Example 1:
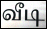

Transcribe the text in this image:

வீடி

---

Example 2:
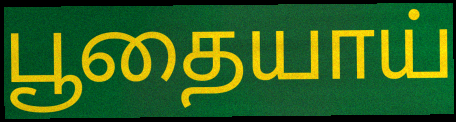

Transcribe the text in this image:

பூதையாய்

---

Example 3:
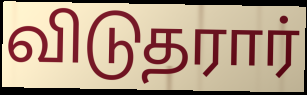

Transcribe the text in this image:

விடுதரார்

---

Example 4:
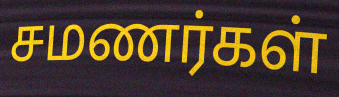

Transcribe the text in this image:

சமணர்கள்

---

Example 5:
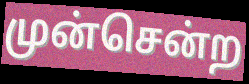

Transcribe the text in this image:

முன்சென்ற